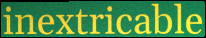
inextricable